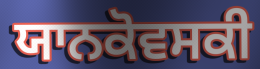
ਯਾਨਕੋਵਸਕੀ